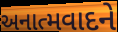
અનાત્મવાદને